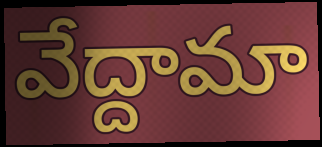
వేద్దామా